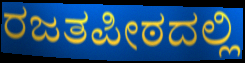
ರಜತಪೀಠದಲ್ಲಿ